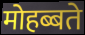
मोहब्बते